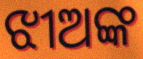
ଝୀଅଙ୍କ